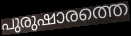
പുരുഷാരത്തെ